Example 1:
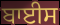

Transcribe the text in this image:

ਬਾਈਸ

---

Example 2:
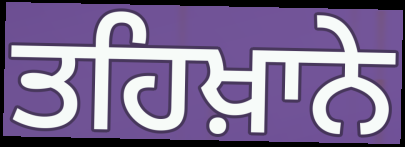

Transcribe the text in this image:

ਤਹਿਖ਼ਾਨੇ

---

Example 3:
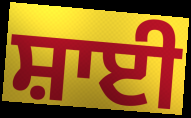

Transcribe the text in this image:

ਸ਼ਾਈ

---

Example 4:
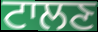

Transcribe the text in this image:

ਟਾਲਣ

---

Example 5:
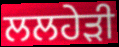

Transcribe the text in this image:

ਲਲਹੇੜੀ